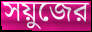
সয়ুজের